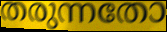
തരുന്നതോ